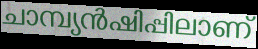
ചാമ്പ്യൻഷിപ്പിലാണ്